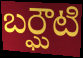
బర్ఘౌటి